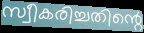
സ്വീകരിച്ചതിന്റെ